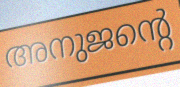
അനുജന്റെ